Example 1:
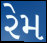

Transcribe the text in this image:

રેમ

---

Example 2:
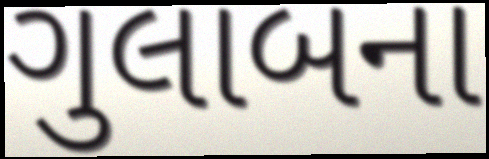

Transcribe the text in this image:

ગુલાબના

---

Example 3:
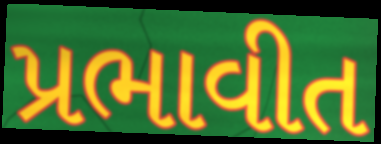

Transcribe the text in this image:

પ્રભાવીત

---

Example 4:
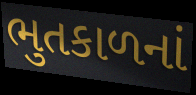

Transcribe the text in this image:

ભુતકાળનાં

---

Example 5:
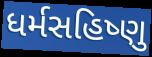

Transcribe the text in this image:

ધર્મસહિષ્ણુ